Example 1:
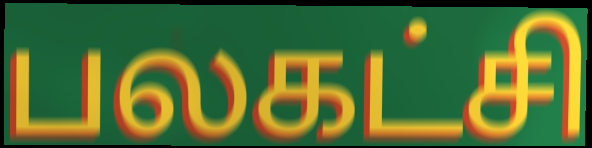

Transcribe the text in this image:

பலகட்சி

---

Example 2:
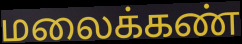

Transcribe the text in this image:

மலைக்கண்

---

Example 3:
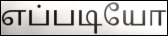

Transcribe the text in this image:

எப்படியோ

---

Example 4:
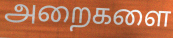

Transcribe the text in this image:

அறைகளை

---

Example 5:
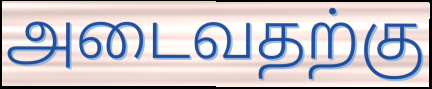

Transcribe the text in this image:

அடைவதற்கு